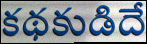
కథకుడిదే